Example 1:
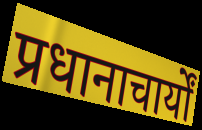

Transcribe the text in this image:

प्रधानाचार्यों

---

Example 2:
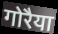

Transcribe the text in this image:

गोरैया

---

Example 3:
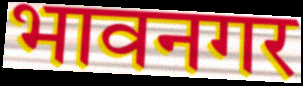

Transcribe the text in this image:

भावनगर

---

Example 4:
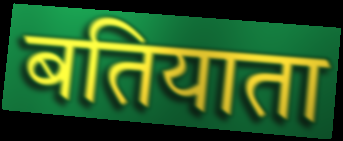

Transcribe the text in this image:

बतियाता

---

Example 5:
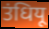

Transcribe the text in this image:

उंधियू